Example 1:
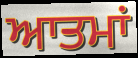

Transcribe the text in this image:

ਆਤਮਾਂ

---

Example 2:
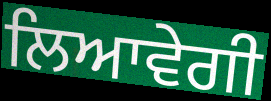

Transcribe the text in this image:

ਲਿਆਵੇਗੀ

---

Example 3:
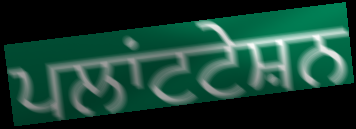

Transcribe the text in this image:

ਪਲਾਂਟਟੇਸ਼ਨ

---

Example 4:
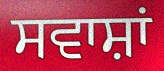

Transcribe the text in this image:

ਸਵਾਸ਼ਾਂ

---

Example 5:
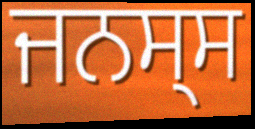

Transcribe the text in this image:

ਜਨਸ੍ਸ